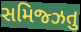
સમિજ્ઝતુ